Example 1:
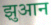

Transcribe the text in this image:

झुआन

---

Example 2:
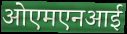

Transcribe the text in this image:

ओएमएनआई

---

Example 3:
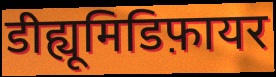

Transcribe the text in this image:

डीह्यूमिडिफ़ायर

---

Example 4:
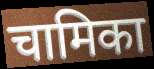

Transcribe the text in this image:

चामिका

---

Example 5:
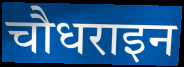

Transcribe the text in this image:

चौधराइन